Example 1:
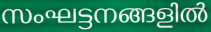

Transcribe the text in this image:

സംഘട്ടനങ്ങളിൽ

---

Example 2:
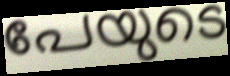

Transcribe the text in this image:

പേയുടെ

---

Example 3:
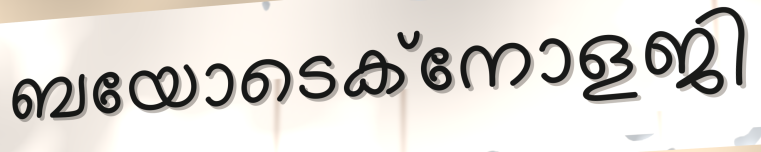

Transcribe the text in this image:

ബയോടെക്നോളജി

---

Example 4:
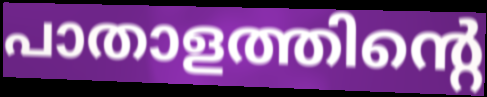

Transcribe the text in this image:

പാതാളത്തിന്റെ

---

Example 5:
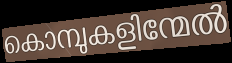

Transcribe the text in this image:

കൊമ്പുകളിന്മേൽ